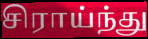
சிராய்ந்து